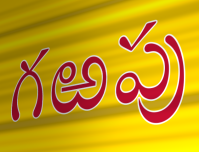
గఱపు